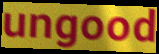
ungood